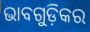
ଭାବଗୁଡ଼ିକର